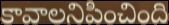
కావాలనిపించింది